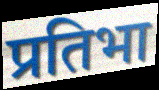
प्रतिभा